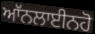
ਆੱਨਲਾਈਨਹੋ